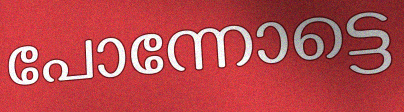
പോന്നോട്ടെ